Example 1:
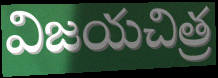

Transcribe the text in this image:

విజయచిత్ర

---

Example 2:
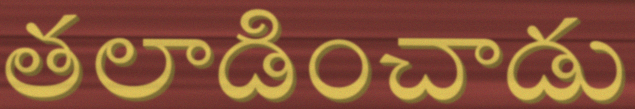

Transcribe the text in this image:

తలాడించాడు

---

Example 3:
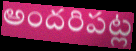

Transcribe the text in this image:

అందరిపట్ల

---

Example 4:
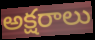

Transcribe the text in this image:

అక్షరాలు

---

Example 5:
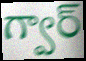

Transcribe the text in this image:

గ్వార్